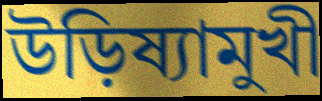
উড়িষ্যামুখী